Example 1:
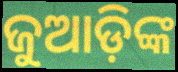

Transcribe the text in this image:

ଜୁଆଡ଼ିଙ୍କ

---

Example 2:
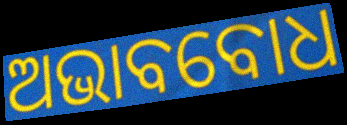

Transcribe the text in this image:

ଅଭାବବୋଧ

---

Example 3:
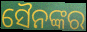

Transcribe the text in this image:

ସୈନଙ୍କର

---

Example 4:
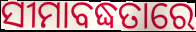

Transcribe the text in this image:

ସୀମାବଦ୍ଧତାରେ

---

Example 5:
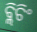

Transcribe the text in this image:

ବ୍ଲିଚିଂ